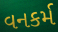
વનકર્મ